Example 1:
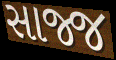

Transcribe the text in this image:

સાજ્જ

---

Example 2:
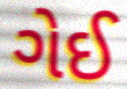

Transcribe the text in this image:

ગેઈ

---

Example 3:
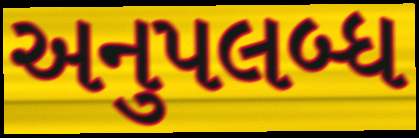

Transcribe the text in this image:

અનુપલબ્ધ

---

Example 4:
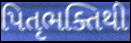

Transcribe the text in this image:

પિતૃભક્તિથી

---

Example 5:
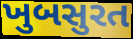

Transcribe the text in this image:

ખુબસુરત